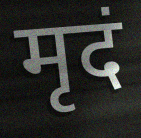
मृदं